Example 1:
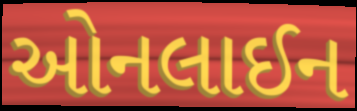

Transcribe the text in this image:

ઓનલાઈન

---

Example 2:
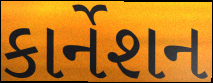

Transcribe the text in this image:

કાર્નેશન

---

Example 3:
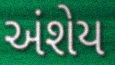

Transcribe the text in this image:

અંશેય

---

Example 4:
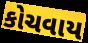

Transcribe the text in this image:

કોચવાય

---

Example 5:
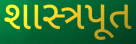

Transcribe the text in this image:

શાસ્ત્રપૂત